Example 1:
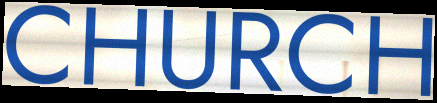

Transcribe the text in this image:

CHURCH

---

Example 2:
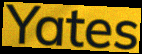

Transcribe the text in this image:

Yates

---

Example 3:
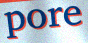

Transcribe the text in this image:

pore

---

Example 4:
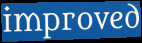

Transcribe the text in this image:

improved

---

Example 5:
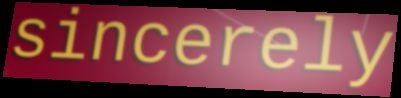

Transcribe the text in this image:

sincerely